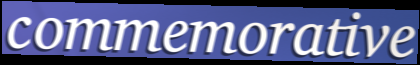
commemorative